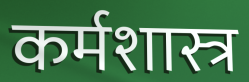
कर्मशास्त्र